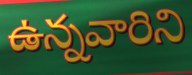
ఉన్నవారిని